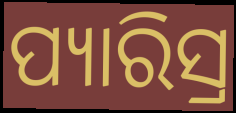
ପ୍ୟାରିସ୍ର